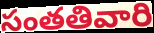
సంతతివారి